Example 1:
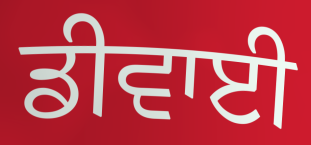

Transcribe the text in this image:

ਡੀਵਾਈ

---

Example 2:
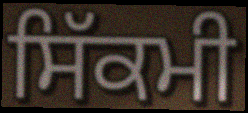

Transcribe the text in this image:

ਸਿੱਕਮੀ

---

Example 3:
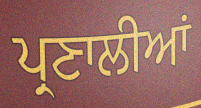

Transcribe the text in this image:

ਪ੍ਰਣਾਲੀਆਂ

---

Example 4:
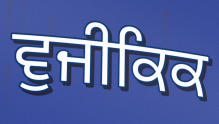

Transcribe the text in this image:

ਵੁਜੀਕਿਕ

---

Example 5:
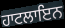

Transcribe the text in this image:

ਹਾਟਲਾਇਨ